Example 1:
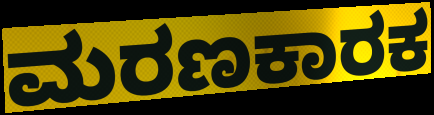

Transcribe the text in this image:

ಮರಣಕಾರಕ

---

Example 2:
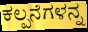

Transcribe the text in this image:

ಕಲ್ಪನೆಗಳನ್ನ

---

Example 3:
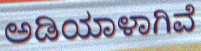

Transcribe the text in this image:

ಅಡಿಯಾಳಾಗಿವೆ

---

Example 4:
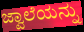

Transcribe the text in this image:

ಜ್ವಾಲೆಯನ್ನು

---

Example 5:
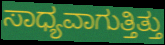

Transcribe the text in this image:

ಸಾಧ್ಯವಾಗುತ್ತಿತ್ತು